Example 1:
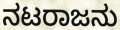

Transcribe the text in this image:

ನಟರಾಜನು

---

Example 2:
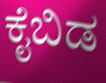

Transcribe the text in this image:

ಕೈಬಿಡ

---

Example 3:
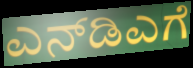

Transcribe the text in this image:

ಎನ್‌ಡಿಎಗೆ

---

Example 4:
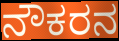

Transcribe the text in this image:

ನೌಕರನ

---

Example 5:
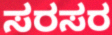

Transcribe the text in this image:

ಸರಸರ